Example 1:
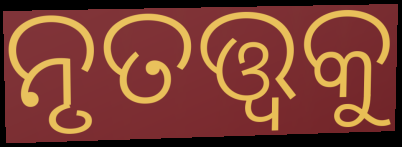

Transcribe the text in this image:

ନୃତତ୍ତ୍ଵକୁ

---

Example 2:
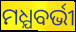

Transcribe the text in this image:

ମଧ୍ଯବର୍ଭୀ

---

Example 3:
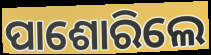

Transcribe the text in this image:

ପାଶୋରିଲେ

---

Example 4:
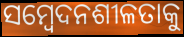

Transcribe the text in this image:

ସମ୍ବେଦନଶୀଳତାକୁ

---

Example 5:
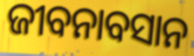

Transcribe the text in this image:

ଜୀବନାବସାନ